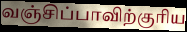
வஞ்சிப்பாவிற்குரிய